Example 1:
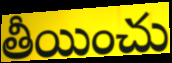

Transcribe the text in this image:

తీయించు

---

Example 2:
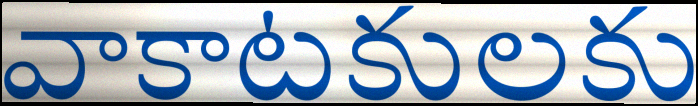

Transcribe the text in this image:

వాకాటకులకు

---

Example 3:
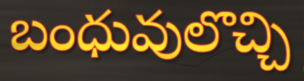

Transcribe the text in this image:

బంధువులొచ్చి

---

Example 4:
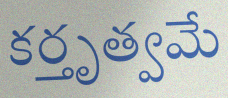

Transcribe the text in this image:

కర్తృత్వమే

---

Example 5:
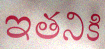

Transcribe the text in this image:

ఇతనికి